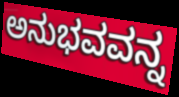
ಅನುಭವವನ್ನ